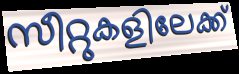
സീറ്റുകളിലേക്ക്